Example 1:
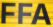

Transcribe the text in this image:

FFA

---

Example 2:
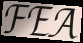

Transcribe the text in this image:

FEA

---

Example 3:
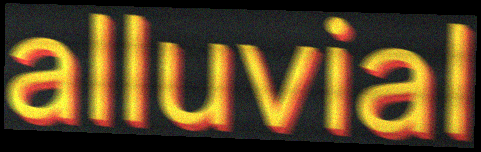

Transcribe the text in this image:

alluvial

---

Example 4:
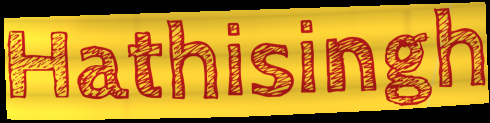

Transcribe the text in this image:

Hathisingh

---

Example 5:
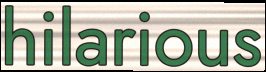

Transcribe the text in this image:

hilarious